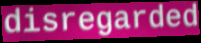
disregarded